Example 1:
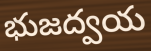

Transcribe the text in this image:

భుజద్వయ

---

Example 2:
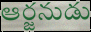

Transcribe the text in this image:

ఆర్జనుడు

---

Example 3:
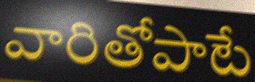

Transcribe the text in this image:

వారితోపాటే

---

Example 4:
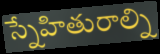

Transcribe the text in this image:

స్నేహితురాల్ని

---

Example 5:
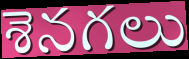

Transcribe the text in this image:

శెనగలు